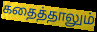
கதைத்தாலும்